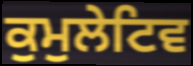
ਕੁਮੁਲੇਟਿਵ